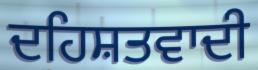
ਦਹਿਸ਼ਤਵਾਦੀ